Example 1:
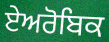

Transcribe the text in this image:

ਏਅਰੋਬਿਕ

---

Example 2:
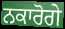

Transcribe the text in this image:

ਨਕਾਰੋਗੇ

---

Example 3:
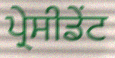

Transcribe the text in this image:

ਪ੍ਰੇਸੀਡੇਂਟ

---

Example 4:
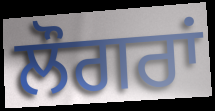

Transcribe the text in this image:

ਲੌਗਰਾਂ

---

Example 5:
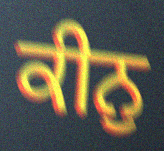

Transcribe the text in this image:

ਕੀਨੁ